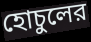
হোচুলের